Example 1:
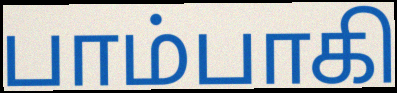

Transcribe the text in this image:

பாம்பாகி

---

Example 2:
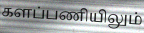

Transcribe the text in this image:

களப்பணியிலும்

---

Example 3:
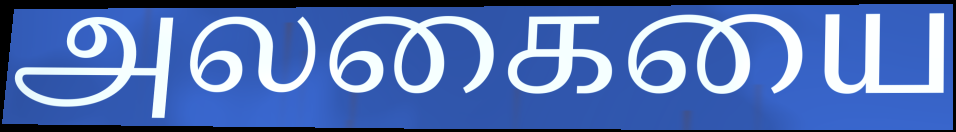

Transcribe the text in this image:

அலகையை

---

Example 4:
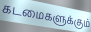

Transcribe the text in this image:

கடமைகளுக்கும்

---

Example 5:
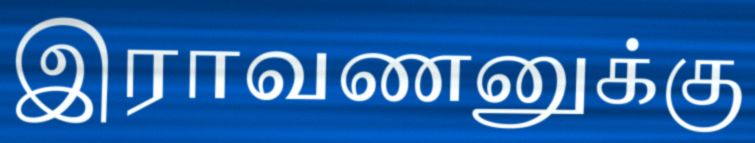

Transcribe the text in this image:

இராவணனுக்கு